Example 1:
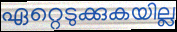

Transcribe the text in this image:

ഏറ്റെടുക്കുകയില്ല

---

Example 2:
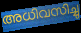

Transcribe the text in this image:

അധിവസിച്ചു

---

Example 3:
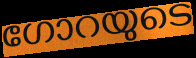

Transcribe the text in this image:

ഗോറയുടെ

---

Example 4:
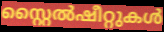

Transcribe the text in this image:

സ്റ്റൈൽഷീറ്റുകൾ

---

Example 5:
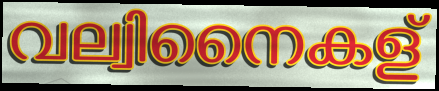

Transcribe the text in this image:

വല്വിനൈകള്